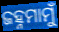
ଜହ୍ନମାମୁଁ